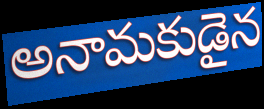
అనామకుడైన